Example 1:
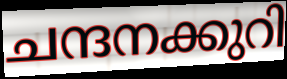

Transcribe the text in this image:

ചന്ദനക്കുറി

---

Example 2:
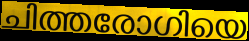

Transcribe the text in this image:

ചിത്തരോഗിയെ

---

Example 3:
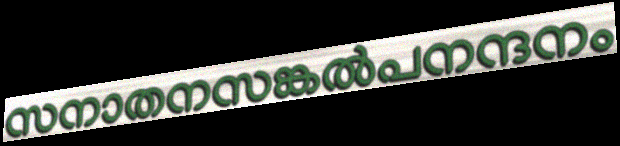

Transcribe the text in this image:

സനാതനസങ്കൽപനന്ദനം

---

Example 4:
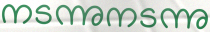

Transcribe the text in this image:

നടന്നുനടന്നു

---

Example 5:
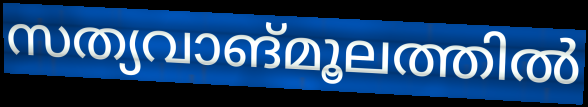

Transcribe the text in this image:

സത്യവാങ്മൂലത്തിൽ